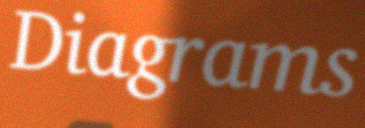
Diagrams